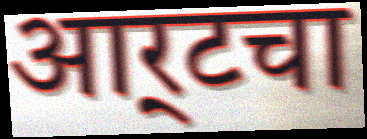
आर्टचा